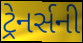
ટ્રેનર્સની